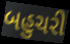
બહુચરી